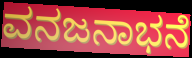
ವನಜನಾಭನೆ